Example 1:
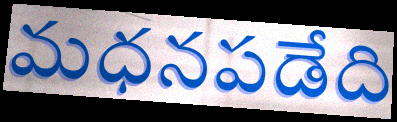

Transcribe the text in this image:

మధనపడేది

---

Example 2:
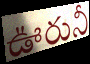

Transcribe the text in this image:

ఊరునీ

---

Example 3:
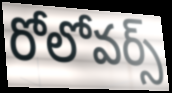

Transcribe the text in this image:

రోలోవర్స్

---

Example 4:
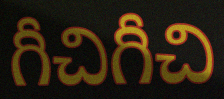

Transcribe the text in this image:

గీచిగీచి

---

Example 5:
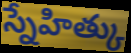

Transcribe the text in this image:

స్నేహిత్కు